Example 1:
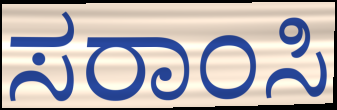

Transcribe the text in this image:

ಸರಾಂಸಿ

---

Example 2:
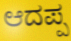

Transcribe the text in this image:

ಆದಪ್ಪ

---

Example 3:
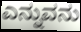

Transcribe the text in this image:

ಎನ್ನುವನು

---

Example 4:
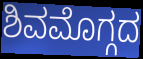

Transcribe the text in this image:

ಶಿವಮೊಗ್ಗದ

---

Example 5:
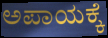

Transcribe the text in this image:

ಅಪಾಯಕ್ಕೆ